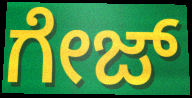
ಗೇಜ್